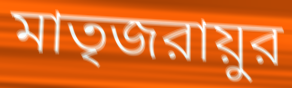
মাতৃজরায়ুর